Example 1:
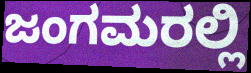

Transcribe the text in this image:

ಜಂಗಮರಲ್ಲಿ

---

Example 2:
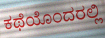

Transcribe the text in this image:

ಕಥೆಯೊಂದರಲ್ಲಿ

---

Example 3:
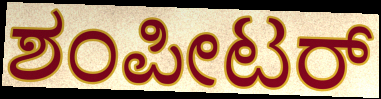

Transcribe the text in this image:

ಶಂಪೀಟರ್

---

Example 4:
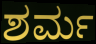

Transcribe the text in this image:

ಶರ್ಮ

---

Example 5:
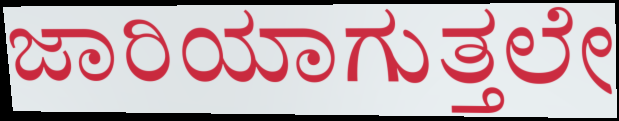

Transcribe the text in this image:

ಜಾರಿಯಾಗುತ್ತಲೇ